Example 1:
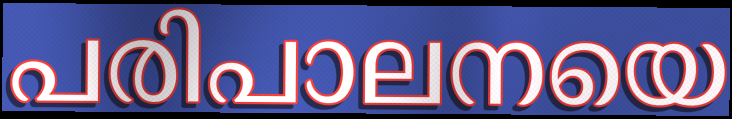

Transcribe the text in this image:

പരിപാലനയെ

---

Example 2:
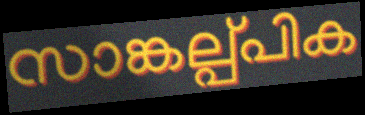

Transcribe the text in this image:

സാങ്കല്പ്പിക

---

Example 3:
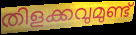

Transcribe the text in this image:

തിളക്കവുമുണ്ട്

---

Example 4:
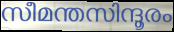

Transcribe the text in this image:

സീമന്തസിന്ദൂരം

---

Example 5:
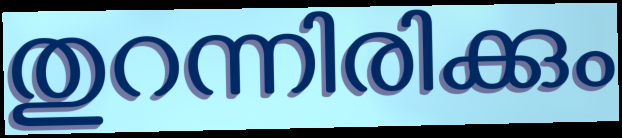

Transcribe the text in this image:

തുറന്നിരിക്കും